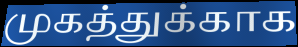
முகத்துக்காக